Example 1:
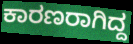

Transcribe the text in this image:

ಕಾರಣರಾಗಿದ್ದ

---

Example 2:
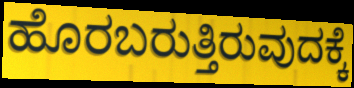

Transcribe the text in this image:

ಹೊರಬರುತ್ತಿರುವುದಕ್ಕೆ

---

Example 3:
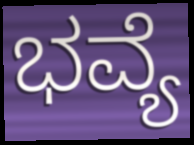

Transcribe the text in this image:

ಭವ್ಯೆ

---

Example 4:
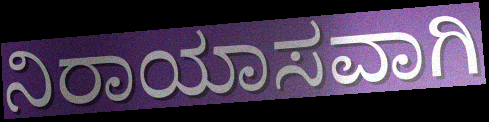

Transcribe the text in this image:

ನಿರಾಯಾಸವಾಗಿ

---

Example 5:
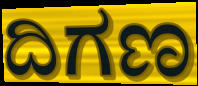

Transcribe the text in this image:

ದಿಗಣ